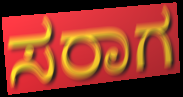
ಸರಾಗ